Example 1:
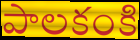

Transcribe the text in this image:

పాలకంకి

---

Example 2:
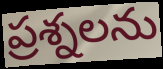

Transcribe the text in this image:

ప్రశ్నలను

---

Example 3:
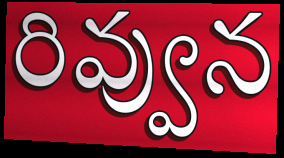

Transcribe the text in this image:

రివ్వున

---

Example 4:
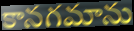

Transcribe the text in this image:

కానగమాను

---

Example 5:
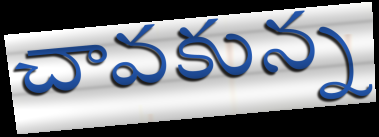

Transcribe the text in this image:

చావకున్న